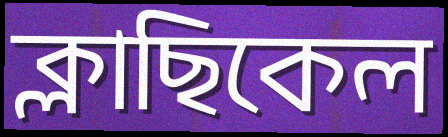
ক্লাছিকেল